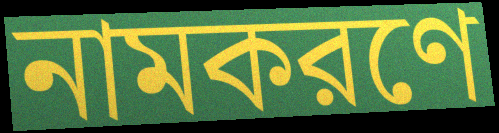
নামকরণে